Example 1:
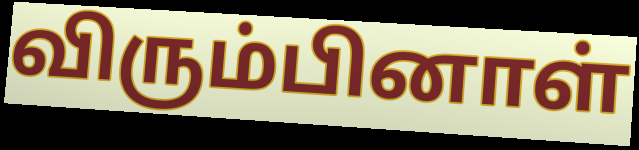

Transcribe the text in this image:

விரும்பினாள்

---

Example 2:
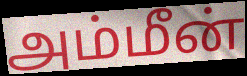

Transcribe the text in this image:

அம்மீன்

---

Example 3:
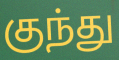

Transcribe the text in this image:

குந்து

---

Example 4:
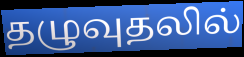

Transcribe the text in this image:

தழுவுதலில்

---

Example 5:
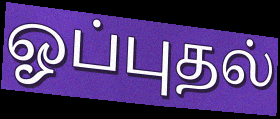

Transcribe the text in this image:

ஓப்புதல்